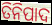
ତିନିପାଦ